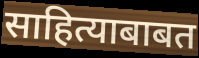
साहित्याबाबत